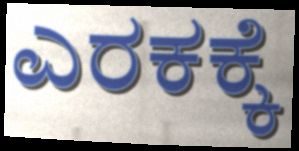
ಎರಕಕ್ಕೆ